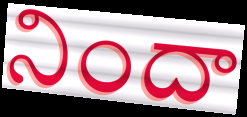
నిందా